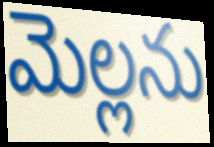
మెల్లను